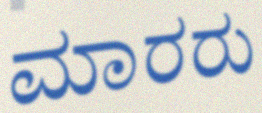
ಮಾರರು